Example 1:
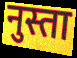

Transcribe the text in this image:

नुस्ता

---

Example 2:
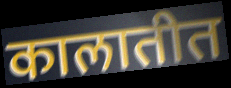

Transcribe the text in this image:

कालातीत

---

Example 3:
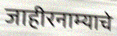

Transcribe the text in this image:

जाहीरनाम्याचे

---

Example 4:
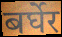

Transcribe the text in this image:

बर्घेर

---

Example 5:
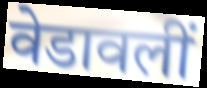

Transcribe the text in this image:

वेडावलीं